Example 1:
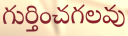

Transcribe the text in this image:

గుర్తించగలవు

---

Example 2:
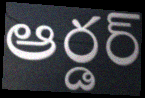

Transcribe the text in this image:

ఆర్డర్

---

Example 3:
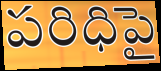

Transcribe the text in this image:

పరిధిపై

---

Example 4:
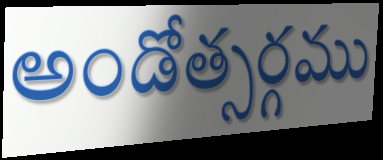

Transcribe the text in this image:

అండోత్సర్గము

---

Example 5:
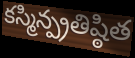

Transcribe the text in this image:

కస్మిన్ప్రతిష్ఠిత